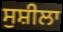
ਸੁਸ਼ੀਲਾ